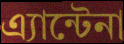
এ্যান্টেনা